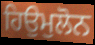
ਹਿਉਮੁਲੋਨ